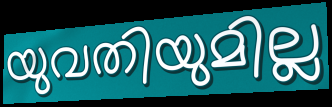
യുവതിയുമില്ല